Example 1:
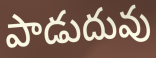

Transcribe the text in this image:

పాడుదువు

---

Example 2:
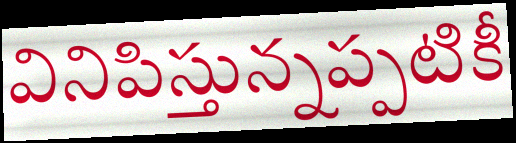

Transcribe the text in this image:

వినిపిస్తున్నప్పటికీ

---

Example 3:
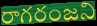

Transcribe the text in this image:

రాగరంజని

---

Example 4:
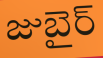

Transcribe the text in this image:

జుబైర్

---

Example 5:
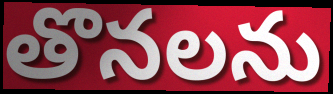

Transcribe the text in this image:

తొనలను